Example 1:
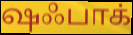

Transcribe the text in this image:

ஷஃபாக்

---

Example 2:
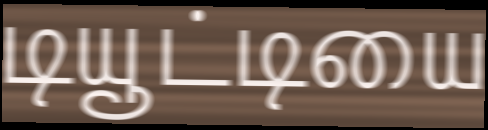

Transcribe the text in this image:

டியூட்டியை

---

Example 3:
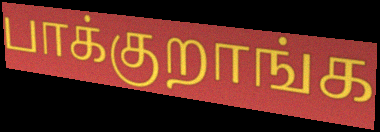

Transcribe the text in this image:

பாக்குறாங்க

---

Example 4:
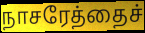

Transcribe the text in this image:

நாசரேத்தைச்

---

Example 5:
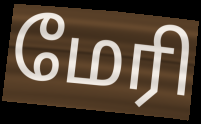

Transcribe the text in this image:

மேரி